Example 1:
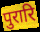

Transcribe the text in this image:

पुरारि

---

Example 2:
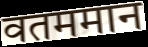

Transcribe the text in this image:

वतममान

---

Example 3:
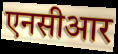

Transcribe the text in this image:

एनसीआर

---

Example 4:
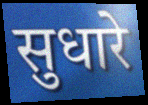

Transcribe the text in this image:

सुधारे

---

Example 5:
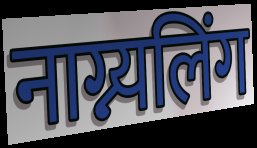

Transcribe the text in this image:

नाग्न्यलिंग